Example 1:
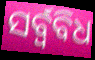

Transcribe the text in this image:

ସର୍ବ୍ବବିଧ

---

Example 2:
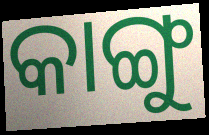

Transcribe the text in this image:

କାଙ୍ଗୁ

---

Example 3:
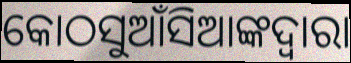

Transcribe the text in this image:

କୋଠସୁଆଁସିଆଙ୍କଦ୍ବାରା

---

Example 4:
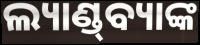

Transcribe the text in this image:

ଲ୍ୟାଣ୍ଡ୍‌ବ୍ୟାଙ୍କ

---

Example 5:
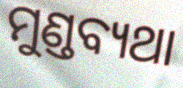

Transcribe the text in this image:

ମୁଣ୍ଡବ୍ୟଥା